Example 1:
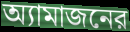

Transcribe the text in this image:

অ্যামাজনের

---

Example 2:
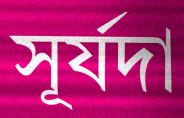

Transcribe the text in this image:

সূর্যদা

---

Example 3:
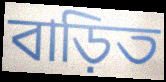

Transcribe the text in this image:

বাড়িত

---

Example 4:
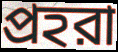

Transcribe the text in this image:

প্রহরা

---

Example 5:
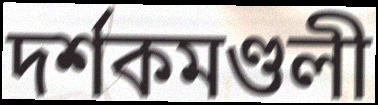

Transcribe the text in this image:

দর্শকমণ্ডলী